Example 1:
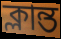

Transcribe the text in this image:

ক্লান্ত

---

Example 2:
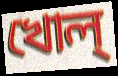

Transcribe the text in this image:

খোল্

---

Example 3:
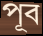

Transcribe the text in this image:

পূব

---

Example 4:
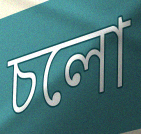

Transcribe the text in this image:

চলো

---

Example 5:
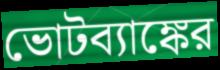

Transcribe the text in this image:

ভোটব্যাঙ্কের